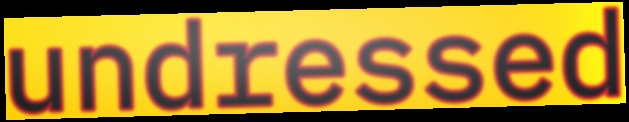
undressed